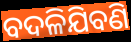
ବଦଳିଯିବଣି